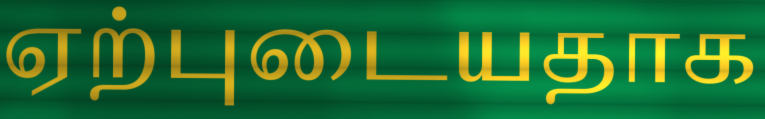
ஏற்புடையதாக